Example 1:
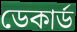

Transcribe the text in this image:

ডেকার্ড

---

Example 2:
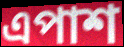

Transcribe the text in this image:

এপাশ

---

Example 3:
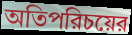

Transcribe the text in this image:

অতিপরিচয়ের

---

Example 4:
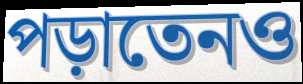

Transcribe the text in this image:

পড়াতেনও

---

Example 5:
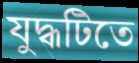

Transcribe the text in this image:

যুদ্ধটিতে